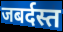
जबर्दस्त